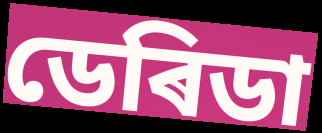
ডেৰিডা